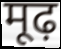
मूढ़